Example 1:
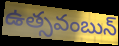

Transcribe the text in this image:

ఉత్సవంబున్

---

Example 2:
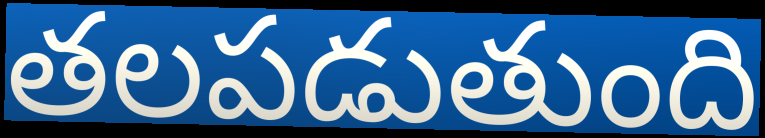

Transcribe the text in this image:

తలపడుతుంది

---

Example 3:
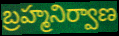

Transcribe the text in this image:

బ్రహ్మనిర్వాణ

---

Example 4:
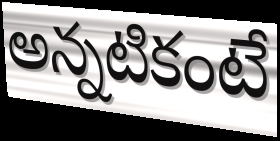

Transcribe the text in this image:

అన్నటికంటే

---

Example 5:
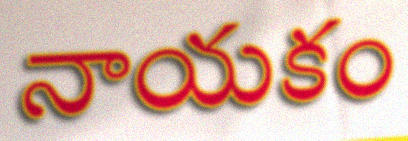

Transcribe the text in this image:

నాయకం